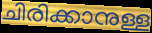
ചിരിക്കാനുള്ള